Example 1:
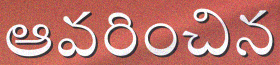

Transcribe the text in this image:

ఆవరించిన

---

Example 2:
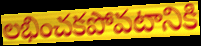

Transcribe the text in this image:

లభించకపోవటానికి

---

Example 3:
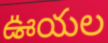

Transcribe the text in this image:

ఊయల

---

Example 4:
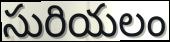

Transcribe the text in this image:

సురియలం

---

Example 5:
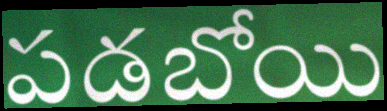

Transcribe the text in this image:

పడబోయి